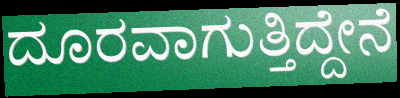
ದೂರವಾಗುತ್ತಿದ್ದೇನೆ